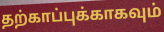
தற்காப்புக்காகவும்